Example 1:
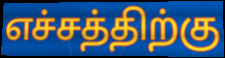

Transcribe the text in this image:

எச்சத்திற்கு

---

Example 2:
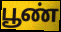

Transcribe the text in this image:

பூண்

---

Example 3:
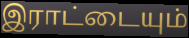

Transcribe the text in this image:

இராட்டையும்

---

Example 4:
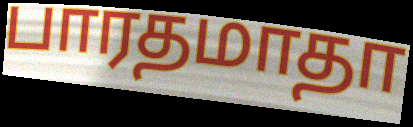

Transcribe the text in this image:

பாரதமாதா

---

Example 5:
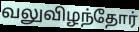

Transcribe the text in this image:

வலுவிழந்தோர்